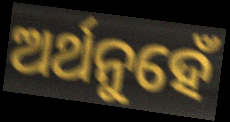
ଅର୍ଥନୁହେଁ